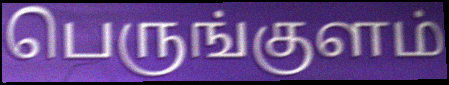
பெருங்குளம்